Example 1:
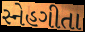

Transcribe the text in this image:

સ્નેહગીતા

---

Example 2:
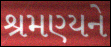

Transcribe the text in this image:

શ્રમણ્યને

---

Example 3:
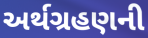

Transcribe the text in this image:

અર્થગ્રહણની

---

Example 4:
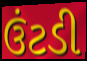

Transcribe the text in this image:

ઉંટડી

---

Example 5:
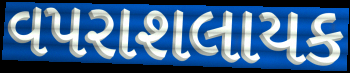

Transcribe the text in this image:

વપરાશલાયક